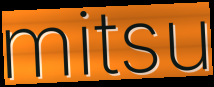
mitsu